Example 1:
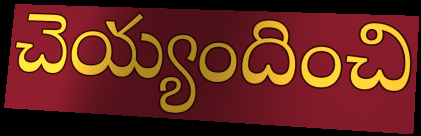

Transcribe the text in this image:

చెయ్యందించి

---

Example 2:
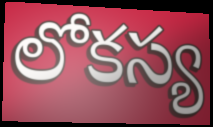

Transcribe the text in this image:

లోకస్య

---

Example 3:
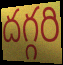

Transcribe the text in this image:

దగ్గరి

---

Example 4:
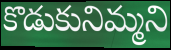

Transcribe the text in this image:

కొడుకునిమ్మని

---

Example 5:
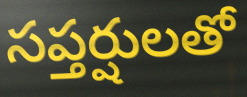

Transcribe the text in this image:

సప్తర్షులతో